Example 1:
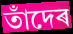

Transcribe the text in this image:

তাঁদেৰ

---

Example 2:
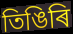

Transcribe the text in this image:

তিঙিৰি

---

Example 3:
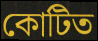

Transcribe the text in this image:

কোটিত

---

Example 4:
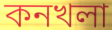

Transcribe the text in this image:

কনখলা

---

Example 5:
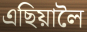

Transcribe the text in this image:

এছিয়ালৈ